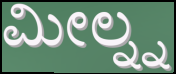
ಮೀಲ್ನ್ನ